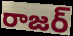
రాజర్